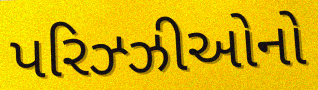
પરિઝ્ઝીઓનો